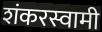
शंकरस्वामी